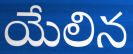
యేలిన